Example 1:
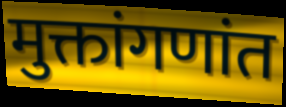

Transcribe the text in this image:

मुक्तांगणांत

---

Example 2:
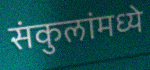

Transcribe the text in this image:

संकुलांमध्ये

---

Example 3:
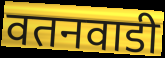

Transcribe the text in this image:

वतनवाडी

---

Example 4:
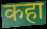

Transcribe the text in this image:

कहा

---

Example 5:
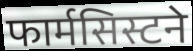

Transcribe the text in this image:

फार्मसिस्टने